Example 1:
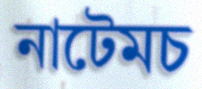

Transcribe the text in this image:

নাটেমচ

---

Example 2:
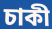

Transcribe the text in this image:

চাকী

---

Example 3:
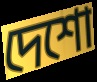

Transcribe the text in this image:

দেশো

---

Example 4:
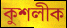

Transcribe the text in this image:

কুশলীক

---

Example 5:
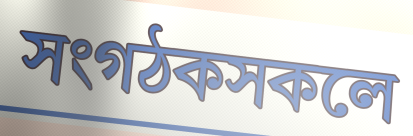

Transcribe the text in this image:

সংগঠকসকলে